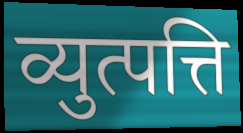
व्युत्पत्ति